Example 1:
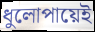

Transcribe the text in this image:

ধুলোপায়েই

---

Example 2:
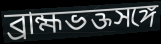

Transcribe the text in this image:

ব্রাহ্মভক্তসঙ্গে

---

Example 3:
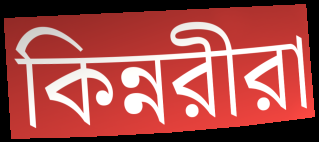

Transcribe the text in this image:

কিন্নরীরা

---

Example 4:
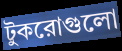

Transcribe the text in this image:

টুকরোগুলো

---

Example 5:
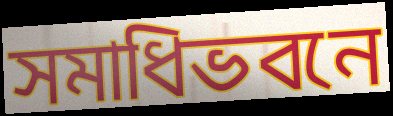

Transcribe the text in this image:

সমাধিভবনে